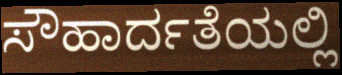
ಸೌಹಾರ್ದತೆಯಲ್ಲಿ